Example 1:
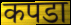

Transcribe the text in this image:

कपडा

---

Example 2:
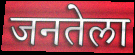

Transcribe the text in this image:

जनतेला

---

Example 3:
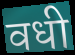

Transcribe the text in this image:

वधी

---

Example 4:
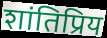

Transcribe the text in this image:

शांतिप्रिय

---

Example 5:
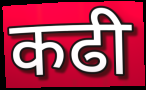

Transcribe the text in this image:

कढी